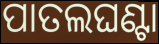
ପାତଲଘଣ୍ଟା